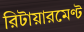
রিটায়ারমেণ্ট